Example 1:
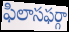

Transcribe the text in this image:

ఫిలాసఫర్గా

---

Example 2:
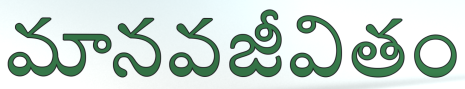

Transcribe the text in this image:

మానవజీవితం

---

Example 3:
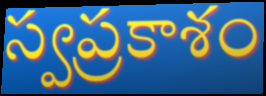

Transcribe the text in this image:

స్వప్రకాశం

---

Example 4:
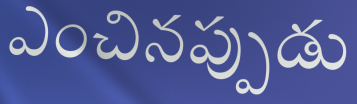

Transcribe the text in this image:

ఎంచినప్పుడు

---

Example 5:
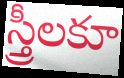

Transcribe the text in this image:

స్త్రీలకూ